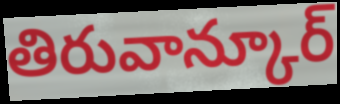
తిరువాన్కూర్